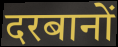
दरबानों